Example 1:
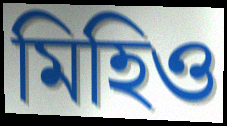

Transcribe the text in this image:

মিহিও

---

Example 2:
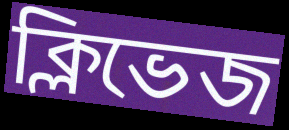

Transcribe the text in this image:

ক্লিভেজ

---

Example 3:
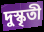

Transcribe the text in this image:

দুস্কৃতী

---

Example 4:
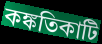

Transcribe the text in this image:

কঙ্কতিকাটি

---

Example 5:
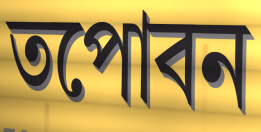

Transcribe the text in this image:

তপোবন